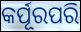
କର୍ପୂରପରି